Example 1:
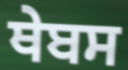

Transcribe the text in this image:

ਥੇਬਸ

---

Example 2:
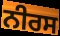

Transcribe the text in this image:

ਨੀਰਸ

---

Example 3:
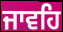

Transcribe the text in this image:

ਜਾਵਹਿ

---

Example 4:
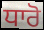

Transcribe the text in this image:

ਧਾਰੋ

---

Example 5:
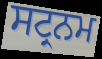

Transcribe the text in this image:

ਸਟ੍ਰਨਮ